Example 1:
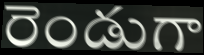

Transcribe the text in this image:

రెండుగా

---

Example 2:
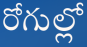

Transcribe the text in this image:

రోగుల్లో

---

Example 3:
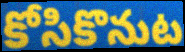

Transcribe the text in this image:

కోసికొనుట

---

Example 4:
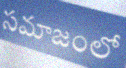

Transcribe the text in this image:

సమాజంలో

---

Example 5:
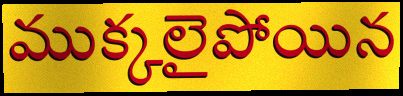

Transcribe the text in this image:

ముక్కలైపోయిన